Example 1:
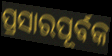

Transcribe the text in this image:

ପ୍ରସାରପୂର୍ବକ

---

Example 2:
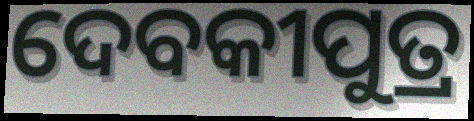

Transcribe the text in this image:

ଦେବକୀପୁତ୍ର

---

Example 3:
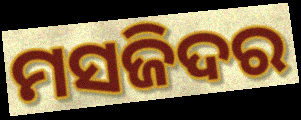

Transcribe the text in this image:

ମସଜିଦର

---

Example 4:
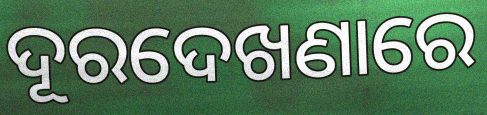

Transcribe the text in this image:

ଦୂରଦେଖଣାରେ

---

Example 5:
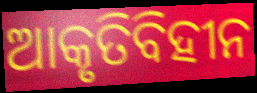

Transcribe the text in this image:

ଆକୃତିବିହୀନ